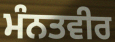
ਮੰਨਤਵੀਰ